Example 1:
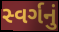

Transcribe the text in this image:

સ્વર્ગનું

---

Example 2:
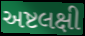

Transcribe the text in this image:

અષ્ટલક્ષી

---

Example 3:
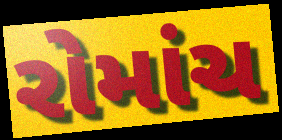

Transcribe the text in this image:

રોમાંચ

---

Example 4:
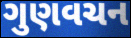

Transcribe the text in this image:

ગુણવચન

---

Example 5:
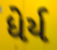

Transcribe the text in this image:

ધેર્ય